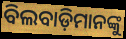
ବିଲବାଡ଼ିମାନଙ୍କୁ